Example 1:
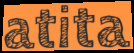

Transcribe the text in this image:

atita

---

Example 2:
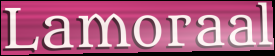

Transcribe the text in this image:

Lamoraal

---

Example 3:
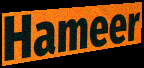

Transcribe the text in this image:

Hameer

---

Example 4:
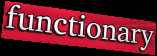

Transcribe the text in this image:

functionary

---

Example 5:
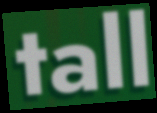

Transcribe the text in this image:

tall